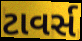
ટાવર્સ